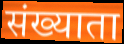
संख्याता